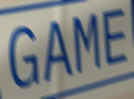
GAME